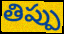
తిప్పు